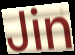
Jin